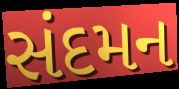
સંદમન